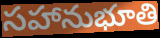
సహానుభూతి